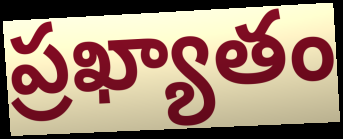
ప్రఖ్యాతం